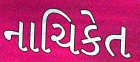
નાચિકેત